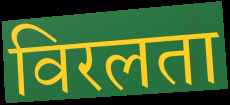
विरलता